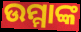
ଉମ୍ମାଙ୍କ